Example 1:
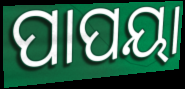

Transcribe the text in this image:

ପାପୟା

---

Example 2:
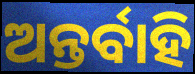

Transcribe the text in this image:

ଅନ୍ତର୍ବାହି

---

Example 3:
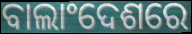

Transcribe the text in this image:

ବାଲାଂଦେଶରେ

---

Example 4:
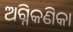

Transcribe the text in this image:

ଅଗ୍ନିକଣିକା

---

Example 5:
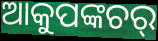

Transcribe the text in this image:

ଆକୁପଙ୍କଚର୍